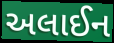
અલાઈન